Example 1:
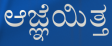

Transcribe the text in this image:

ಆಜ್ಞೆಯಿತ್ತ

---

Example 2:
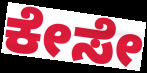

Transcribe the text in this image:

ಕೇಸೇ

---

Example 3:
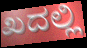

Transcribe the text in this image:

ಖದಲ್ಲಿ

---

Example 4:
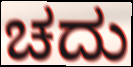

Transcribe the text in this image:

ಚದು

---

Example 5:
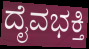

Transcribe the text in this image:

ದೈವಭಕ್ತಿ